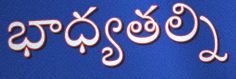
భాధ్యతల్ని